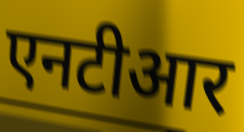
एनटीआर